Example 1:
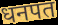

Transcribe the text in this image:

धनपत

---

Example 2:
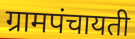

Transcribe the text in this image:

ग्रामपंचायती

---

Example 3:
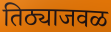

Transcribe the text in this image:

तिठ्याजवळ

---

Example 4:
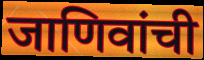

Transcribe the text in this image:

जाणिवांची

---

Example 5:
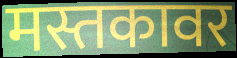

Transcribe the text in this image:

मस्तकावर